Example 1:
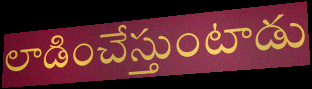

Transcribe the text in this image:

లాడించేస్తుంటాడు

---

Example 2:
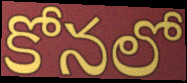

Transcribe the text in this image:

కోనలో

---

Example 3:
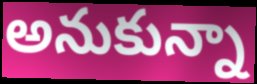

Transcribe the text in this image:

అనుకున్నా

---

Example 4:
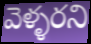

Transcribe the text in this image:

వెళ్ళరని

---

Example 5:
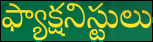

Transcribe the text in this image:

ఫ్యాక్షనిస్టులు